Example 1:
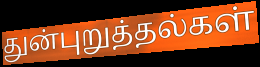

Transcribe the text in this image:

துன்புறுத்தல்கள்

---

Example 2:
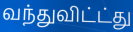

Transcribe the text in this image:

வந்துவிட்ட்து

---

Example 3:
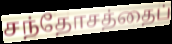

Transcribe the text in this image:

சந்தோசத்தைப்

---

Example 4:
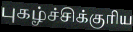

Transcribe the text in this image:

புகழ்ச்சிக்குரிய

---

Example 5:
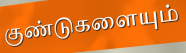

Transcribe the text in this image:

குண்டுகளையும்